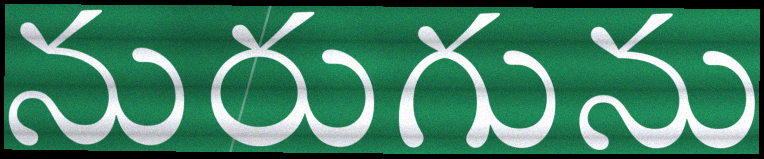
నురుగును